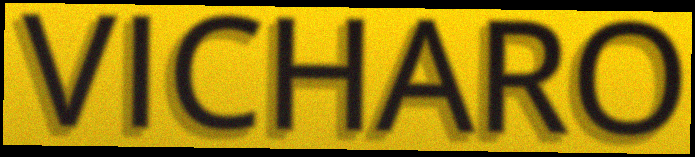
VICHARO